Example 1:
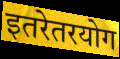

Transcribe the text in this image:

इतरेतरयोग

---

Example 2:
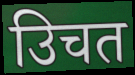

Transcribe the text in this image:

उिचत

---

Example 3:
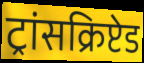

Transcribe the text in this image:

ट्रांसक्रिप्टेड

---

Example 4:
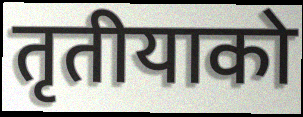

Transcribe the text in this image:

तृतीयाको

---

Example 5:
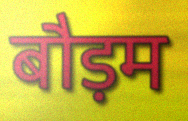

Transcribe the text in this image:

बौड़म